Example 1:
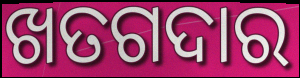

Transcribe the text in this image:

ଖତଗଦାର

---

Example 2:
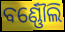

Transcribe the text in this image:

ବର୍ଣ୍ଣୌଲି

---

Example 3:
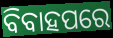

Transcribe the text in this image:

ବିବାହପରେ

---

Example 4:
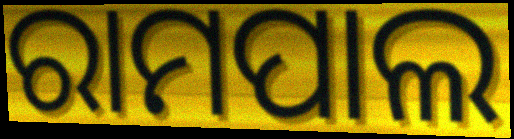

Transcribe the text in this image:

ରାମପାଲ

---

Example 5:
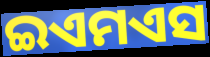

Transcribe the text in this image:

ଇଏମଏସ